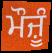
ਮੌਜ਼ੂੰ